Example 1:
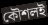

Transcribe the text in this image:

কৌশলই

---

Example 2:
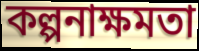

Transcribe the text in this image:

কল্পনাক্ষমতা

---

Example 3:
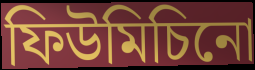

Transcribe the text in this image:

ফিউমিচিনো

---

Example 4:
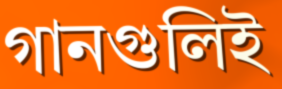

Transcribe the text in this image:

গানগুলিই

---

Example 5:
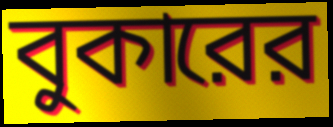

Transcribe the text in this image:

বুকারের